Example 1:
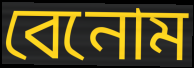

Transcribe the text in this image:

বেনোম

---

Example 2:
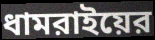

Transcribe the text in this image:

ধামরাইয়ের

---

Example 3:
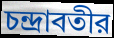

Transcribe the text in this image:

চন্দ্রাবতীর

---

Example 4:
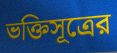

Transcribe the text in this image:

ভক্তিসূত্রের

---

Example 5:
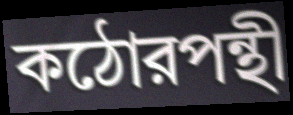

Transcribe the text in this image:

কঠোরপন্থী